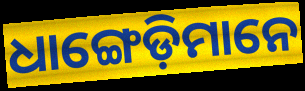
ଧାଙ୍ଗେଡ଼ିମାନେ